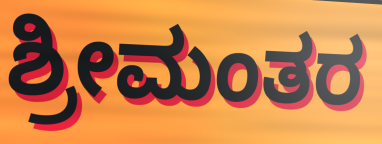
ಶ್ರೀಮಂತರ